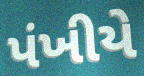
પંખીયે